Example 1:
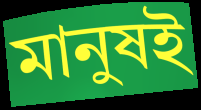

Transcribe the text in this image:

মানুষই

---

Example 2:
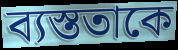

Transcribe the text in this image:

ব্যস্ততাকে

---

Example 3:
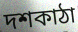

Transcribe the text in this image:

দশকাঠা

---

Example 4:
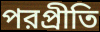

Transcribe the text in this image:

পরপ্রীতি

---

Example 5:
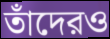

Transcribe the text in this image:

তাঁদেরও